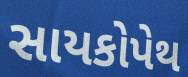
સાયકોપેથ